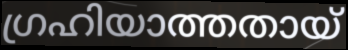
ഗ്രഹിയാത്തതായ്